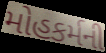
મોહકર્મની